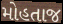
મોહતાજ